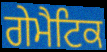
ਗੇਮੈਟਿਕ